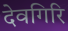
देवगिरि